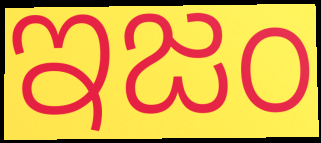
ఇజం